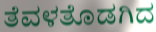
ತೆವಳತೊಡಗಿದ